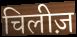
चिलीज़